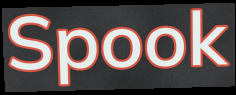
Spook